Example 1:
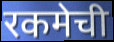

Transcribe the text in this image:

रकमेची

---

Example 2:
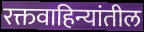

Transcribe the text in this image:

रक्तवाहिन्यांतील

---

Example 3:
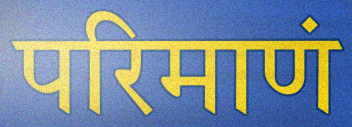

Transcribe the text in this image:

परिमाणं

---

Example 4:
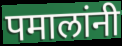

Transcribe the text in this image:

पमालांनी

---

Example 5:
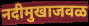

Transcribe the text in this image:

नदीमुखाजवळ